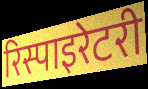
रिस्पाइरेटरी